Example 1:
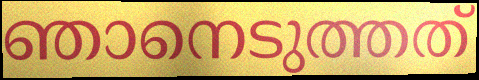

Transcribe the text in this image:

ഞാനെടുത്തത്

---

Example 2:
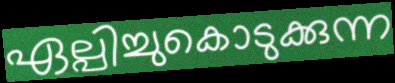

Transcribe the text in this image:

ഏല്പിച്ചുകൊടുക്കുന്ന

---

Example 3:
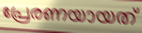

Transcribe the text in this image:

പ്രേരണയായത്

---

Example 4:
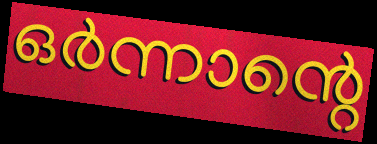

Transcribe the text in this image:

ഒർന്നാന്റെ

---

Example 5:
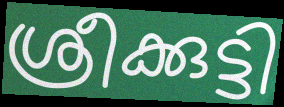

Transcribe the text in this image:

ശ്രീക്കുട്ടി